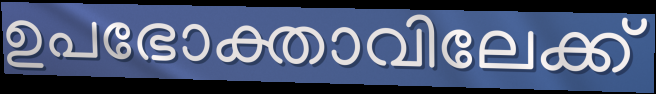
ഉപഭോക്താവിലേക്ക്